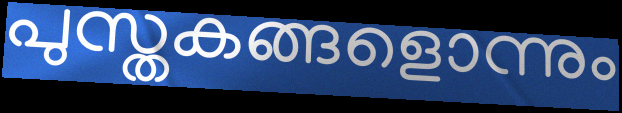
പുസ്തകങ്ങളൊന്നും